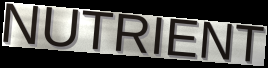
NUTRIENT